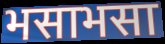
भसाभसा